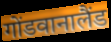
गोंडवानालैंड